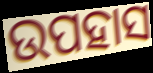
ଉପହାସ